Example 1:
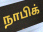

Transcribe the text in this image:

நாபிக்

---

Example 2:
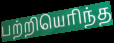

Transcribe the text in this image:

பற்றியெரிந்த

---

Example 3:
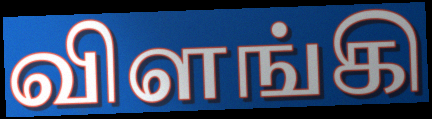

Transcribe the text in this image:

விளங்கி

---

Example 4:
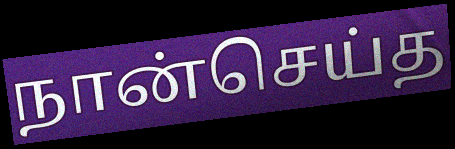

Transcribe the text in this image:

நான்செய்த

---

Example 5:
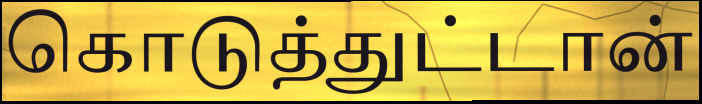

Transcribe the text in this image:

கொடுத்துட்டான்